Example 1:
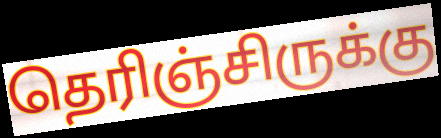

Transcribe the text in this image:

தெரிஞ்சிருக்கு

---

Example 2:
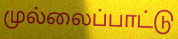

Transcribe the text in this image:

முல்லைப்பாட்டு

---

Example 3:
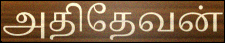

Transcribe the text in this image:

அதிதேவன்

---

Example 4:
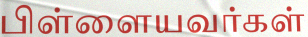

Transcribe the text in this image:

பிள்ளையவர்கள்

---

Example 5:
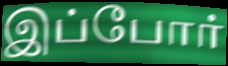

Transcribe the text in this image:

இப்போர்